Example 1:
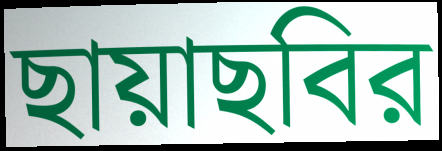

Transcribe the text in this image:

ছায়াছবির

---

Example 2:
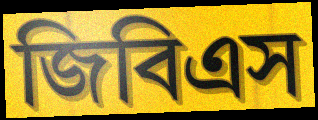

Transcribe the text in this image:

জিবিএস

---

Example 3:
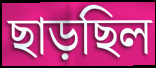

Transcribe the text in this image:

ছাড়ছিল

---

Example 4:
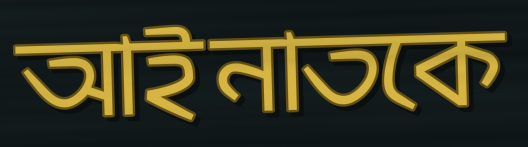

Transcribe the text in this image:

আইনাতকে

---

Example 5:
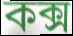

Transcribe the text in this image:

কক্স